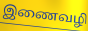
இணைவழி